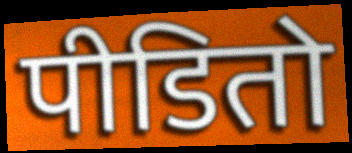
पीडितो